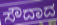
ಸೌದಾದ